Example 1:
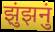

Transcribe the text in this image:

झुंझनुं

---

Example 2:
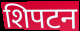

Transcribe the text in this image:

शिपटन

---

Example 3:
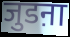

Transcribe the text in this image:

जुडऩा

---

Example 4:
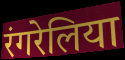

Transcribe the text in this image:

रंगरेलिया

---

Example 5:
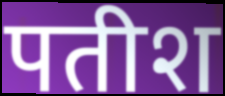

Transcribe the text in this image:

पतीश